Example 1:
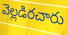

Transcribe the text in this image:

వెల్లడిరచారు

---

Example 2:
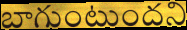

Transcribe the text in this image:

బాగుంటుందని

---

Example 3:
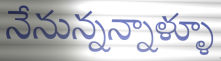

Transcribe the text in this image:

నేనున్నన్నాళ్ళూ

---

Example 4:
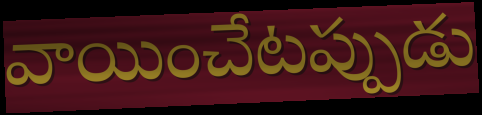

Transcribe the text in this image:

వాయించేటప్పుడు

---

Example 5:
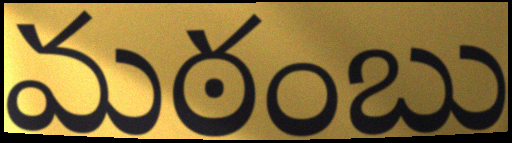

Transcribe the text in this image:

మఠంబు